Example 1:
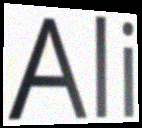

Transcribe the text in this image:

Ali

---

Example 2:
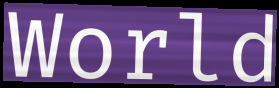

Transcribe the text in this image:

World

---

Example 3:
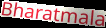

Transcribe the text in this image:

Bharatmala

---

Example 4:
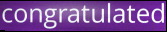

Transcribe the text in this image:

congratulated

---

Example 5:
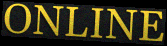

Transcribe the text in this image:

ONLINE